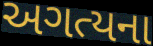
અગત્યના